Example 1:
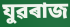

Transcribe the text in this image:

যুৱৰাজ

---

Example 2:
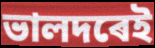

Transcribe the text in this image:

ভালদৰেই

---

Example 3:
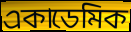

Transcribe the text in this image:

একাডেমিক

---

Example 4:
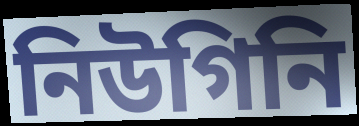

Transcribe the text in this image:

নিউগিনি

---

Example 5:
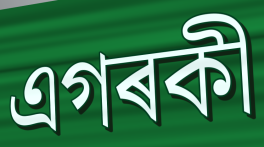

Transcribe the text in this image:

এগৰকী